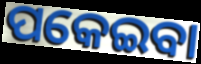
ପକେଇବା